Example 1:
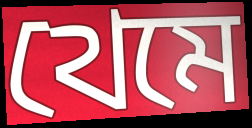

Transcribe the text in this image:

থেমে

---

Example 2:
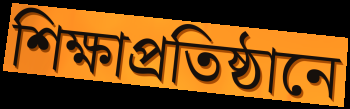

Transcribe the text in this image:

শিক্ষাপ্রতিষ্ঠানে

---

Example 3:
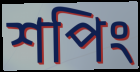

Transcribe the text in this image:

শপিং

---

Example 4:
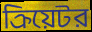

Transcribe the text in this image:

ক্রিয়েটর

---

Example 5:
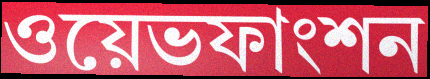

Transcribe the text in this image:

ওয়েভফাংশন